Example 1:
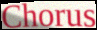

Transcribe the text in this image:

Chorus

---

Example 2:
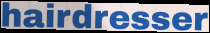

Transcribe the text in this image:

hairdresser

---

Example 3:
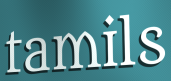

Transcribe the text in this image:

tamils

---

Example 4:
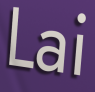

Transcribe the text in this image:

Lai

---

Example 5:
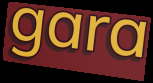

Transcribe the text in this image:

gara